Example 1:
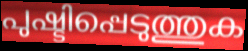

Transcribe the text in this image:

പുഷ്ടിപ്പെടുത്തുക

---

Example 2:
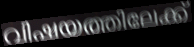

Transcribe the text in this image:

വിഷയത്തിലേക്ക്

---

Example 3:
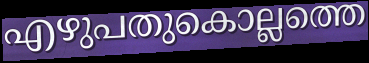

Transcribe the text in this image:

എഴുപതുകൊല്ലത്തെ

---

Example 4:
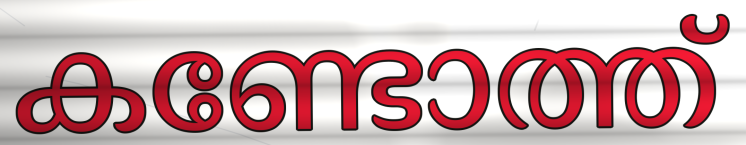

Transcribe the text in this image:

കണ്ടോത്ത്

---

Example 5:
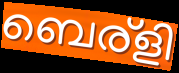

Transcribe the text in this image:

ബെര്ളി